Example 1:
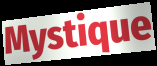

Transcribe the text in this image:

Mystique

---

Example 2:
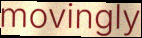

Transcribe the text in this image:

movingly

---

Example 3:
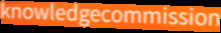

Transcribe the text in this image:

knowledgecommission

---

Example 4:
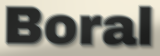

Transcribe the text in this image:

Boral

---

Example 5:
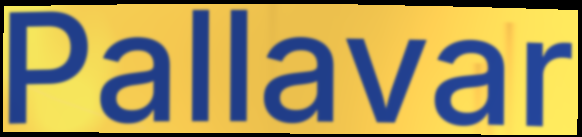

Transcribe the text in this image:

Pallavar